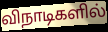
விநாடிகளில்